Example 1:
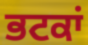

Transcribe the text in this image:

ਭਟਕਾਂ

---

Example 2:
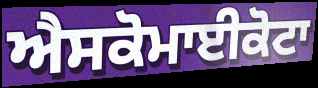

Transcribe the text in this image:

ਐਸਕੋਮਾਈਕੋਟਾ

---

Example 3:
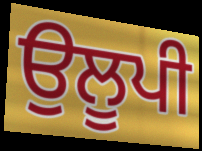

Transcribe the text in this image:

ਉਲੂਪੀ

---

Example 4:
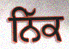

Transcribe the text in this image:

ਨਿੱਕ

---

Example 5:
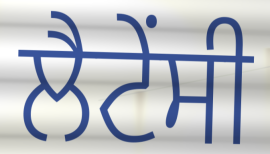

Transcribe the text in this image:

ਲੈਟੇਂਸੀ